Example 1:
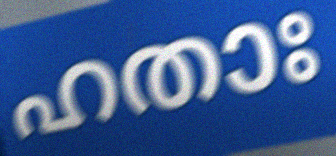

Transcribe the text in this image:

ഹതാഃ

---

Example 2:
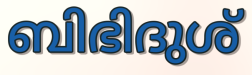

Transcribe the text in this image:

ബിഭിദുശ്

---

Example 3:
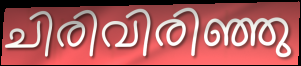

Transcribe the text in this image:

ചിരിവിരിഞ്ഞു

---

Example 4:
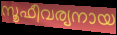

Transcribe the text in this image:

സൂഫീവര്യനായ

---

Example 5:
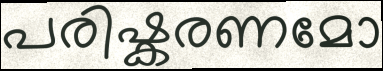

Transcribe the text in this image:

പരിഷ്കരണമോ